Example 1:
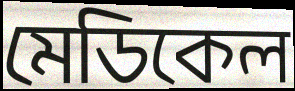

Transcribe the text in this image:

মেডিকেল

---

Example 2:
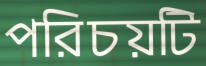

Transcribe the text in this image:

পরিচয়টি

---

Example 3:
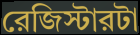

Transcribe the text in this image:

রেজিস্টারটা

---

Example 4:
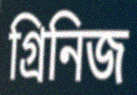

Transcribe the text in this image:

গ্রিনিজ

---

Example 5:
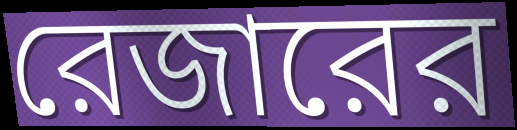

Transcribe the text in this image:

রেজারের